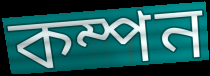
কম্পন